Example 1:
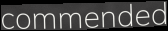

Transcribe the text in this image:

commended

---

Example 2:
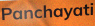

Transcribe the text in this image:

Panchayati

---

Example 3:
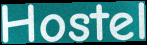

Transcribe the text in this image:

Hostel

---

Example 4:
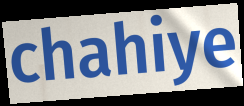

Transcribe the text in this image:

chahiye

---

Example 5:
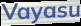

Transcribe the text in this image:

Vayasu